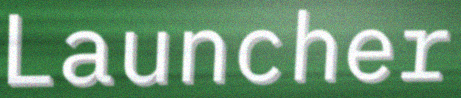
Launcher